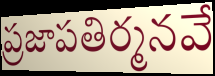
ప్రజాపతిర్మనవే